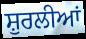
ਸ਼ੁਰਲੀਆਂ